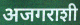
अजगराशी